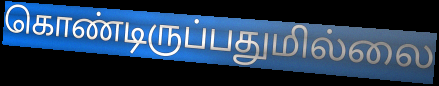
கொண்டிருப்பதுமில்லை